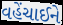
વહેંચાઈને